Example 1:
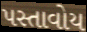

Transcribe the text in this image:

પસ્તાવોય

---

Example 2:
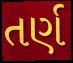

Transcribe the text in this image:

તર્ણ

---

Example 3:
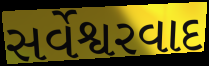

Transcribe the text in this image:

સર્વેશ્વરવાદ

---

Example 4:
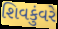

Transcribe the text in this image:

શિવકુંવરે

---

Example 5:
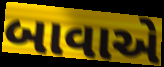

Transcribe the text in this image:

બાવાએ